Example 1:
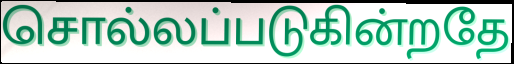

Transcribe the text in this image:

சொல்லப்படுகின்றதே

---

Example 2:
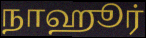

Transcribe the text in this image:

நாஹூர்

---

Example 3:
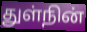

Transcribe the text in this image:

துள்நின்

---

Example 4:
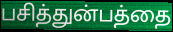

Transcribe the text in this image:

பசித்துன்பத்தை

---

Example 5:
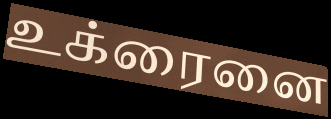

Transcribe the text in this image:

உக்ரைனை